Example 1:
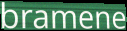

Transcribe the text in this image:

bramene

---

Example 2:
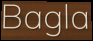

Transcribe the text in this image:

Bagla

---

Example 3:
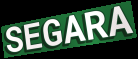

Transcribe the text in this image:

SEGARA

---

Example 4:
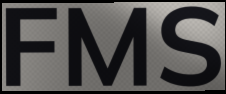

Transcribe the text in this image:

FMS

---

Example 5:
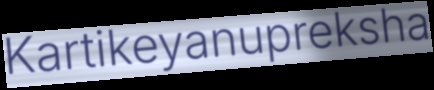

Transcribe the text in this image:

Kartikeyanupreksha